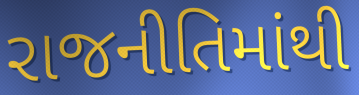
રાજનીતિમાંથી